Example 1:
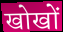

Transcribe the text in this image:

खोखों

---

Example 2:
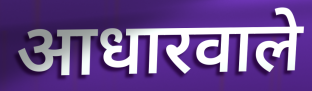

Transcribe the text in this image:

आधारवाले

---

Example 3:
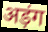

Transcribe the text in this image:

अड़ंग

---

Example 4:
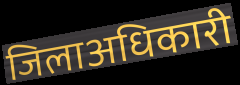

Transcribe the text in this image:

जिलाअधिकारी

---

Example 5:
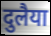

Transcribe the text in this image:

दुलैया